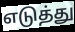
எடுத்து